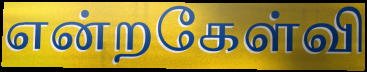
என்றகேள்வி